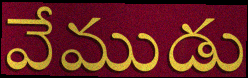
వేముడు